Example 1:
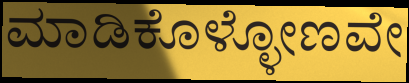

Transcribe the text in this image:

ಮಾಡಿಕೊಳ್ಳೋಣವೇ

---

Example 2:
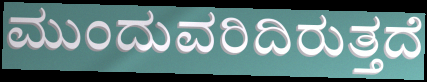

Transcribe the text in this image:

ಮುಂದುವರಿದಿರುತ್ತದೆ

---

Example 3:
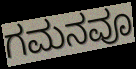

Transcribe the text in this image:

ಗಮನವೂ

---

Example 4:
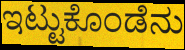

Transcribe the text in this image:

ಇಟ್ಟುಕೊಂಡೆನು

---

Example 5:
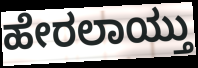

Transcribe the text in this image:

ಹೇರಲಾಯ್ತು